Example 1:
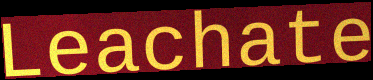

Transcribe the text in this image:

Leachate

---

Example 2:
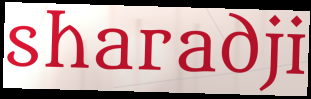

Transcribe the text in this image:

sharadji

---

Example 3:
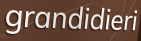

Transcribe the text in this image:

grandidieri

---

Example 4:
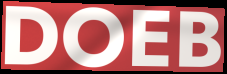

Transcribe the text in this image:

DOEB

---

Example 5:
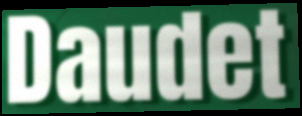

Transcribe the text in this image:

Daudet